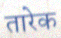
तारेक